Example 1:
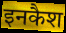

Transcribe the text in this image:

इनकैश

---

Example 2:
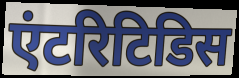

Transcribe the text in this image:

एंटरिटिडिस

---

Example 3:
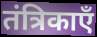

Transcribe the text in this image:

तंत्रिकाएँ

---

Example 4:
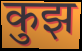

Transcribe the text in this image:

कुझ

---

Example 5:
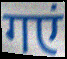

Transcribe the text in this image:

गएं